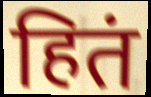
हितं